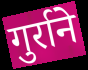
गुर्राने